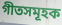
গীতসমূহক